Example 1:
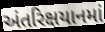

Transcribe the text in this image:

અંતરિક્ષયાનમાં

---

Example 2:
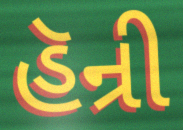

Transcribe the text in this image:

હૅન્રી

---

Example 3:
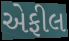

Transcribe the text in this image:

એફીલ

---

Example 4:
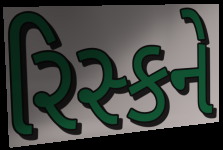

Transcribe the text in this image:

રિસ્કને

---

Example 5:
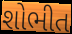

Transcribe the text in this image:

શોભીત